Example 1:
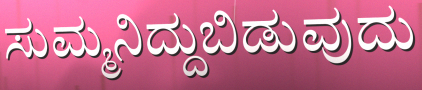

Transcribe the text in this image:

ಸುಮ್ಮನಿದ್ದುಬಿಡುವುದು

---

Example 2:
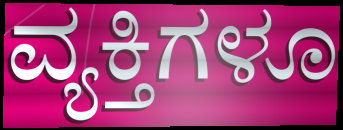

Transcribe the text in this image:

ವ್ಯಕ್ತಿಗಳೂ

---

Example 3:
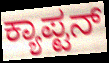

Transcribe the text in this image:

ಕ್ಯಾಪ್ಟನ್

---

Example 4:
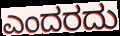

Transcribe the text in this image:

ಎಂದರದು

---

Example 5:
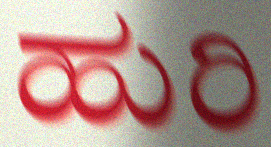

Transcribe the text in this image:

ಹುರಿ